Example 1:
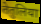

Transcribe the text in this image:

तेतुलिया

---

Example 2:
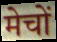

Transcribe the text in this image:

मेचों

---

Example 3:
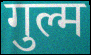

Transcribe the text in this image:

गुल्म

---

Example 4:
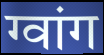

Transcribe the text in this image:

ग्वांग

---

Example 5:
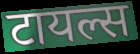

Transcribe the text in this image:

टायल्स